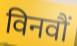
विनवौं